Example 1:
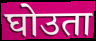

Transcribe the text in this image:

घोउता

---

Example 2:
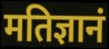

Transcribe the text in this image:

मतिज्ञानं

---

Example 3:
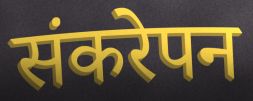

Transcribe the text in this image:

संकरेपन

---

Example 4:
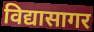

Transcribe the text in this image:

विद्यासागर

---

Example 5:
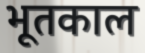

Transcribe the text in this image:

भूतकाल